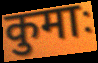
कुमाः